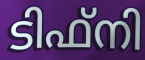
ടിഫ്നി